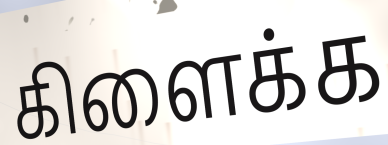
கிளைக்க